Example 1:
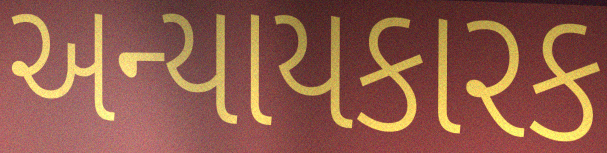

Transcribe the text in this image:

અન્યાયકારક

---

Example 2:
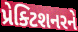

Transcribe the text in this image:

પ્રેક્ટિશનરને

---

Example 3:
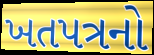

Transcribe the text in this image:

ખતપત્રનો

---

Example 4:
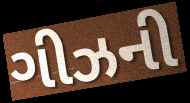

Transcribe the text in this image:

ગીઝની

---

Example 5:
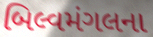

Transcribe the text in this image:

બિલ્વમંગલના